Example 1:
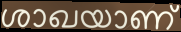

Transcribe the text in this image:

ശാഖയാണ്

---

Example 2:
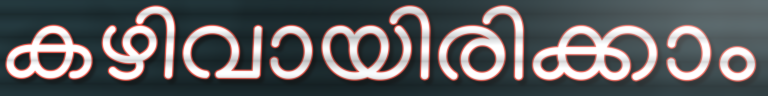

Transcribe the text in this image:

കഴിവായിരിക്കാം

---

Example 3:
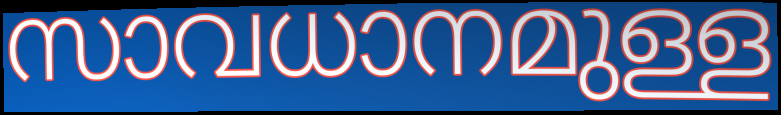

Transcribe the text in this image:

സാവധാനമുള്ള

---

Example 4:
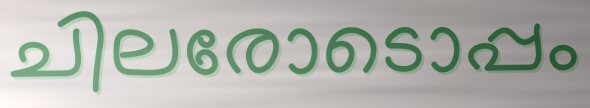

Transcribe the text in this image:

ചിലരോടൊപ്പം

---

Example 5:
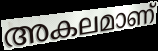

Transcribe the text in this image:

അകലമാണ്